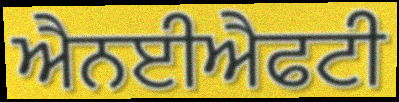
ਐਨਈਐਫਟੀ